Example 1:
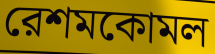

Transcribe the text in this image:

রেশমকোমল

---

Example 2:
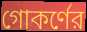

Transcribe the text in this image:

গোকর্ণের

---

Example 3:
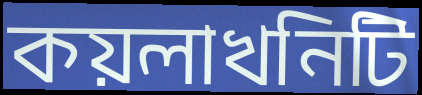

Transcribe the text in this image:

কয়লাখনিটি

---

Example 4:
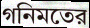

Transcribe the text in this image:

গনিমতের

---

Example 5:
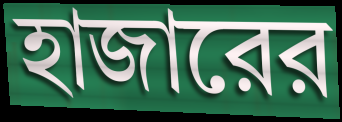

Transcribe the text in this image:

হাজারের